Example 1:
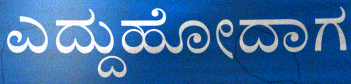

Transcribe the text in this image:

ಎದ್ದುಹೋದಾಗ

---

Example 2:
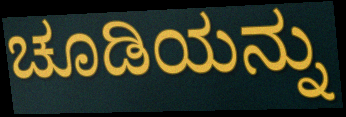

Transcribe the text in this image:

ಚೂಡಿಯನ್ನು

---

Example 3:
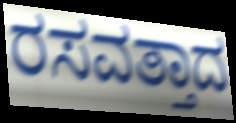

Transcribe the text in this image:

ರಸವತ್ತಾದ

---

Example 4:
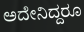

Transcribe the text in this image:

ಅದೇನಿದ್ದರೂ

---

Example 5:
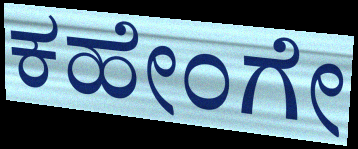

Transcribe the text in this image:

ಕಹೇಂಗೇ